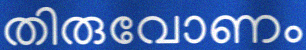
തിരുവോണം